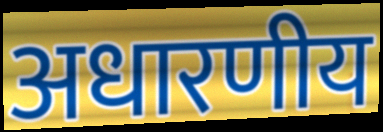
अधारणीय